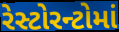
રેસ્ટોરન્ટોમાં